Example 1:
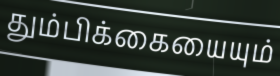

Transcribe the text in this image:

தும்பிக்கையையும்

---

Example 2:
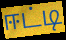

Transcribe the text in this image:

ஈட்டி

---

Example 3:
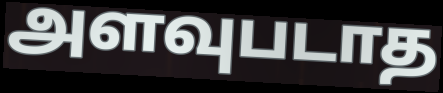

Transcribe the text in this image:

அளவுபடாத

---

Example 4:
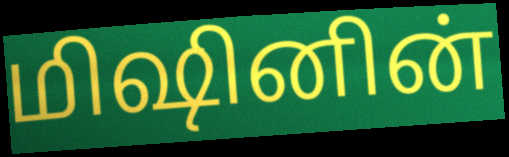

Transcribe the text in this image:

மிஷினின்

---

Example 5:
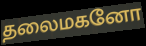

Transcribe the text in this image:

தலைமகனோ